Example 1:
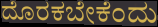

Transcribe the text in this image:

ದೊರಕಬೇಕೆಂದು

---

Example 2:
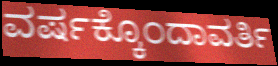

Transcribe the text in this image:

ವರ್ಷಕ್ಕೊಂದಾವರ್ತಿ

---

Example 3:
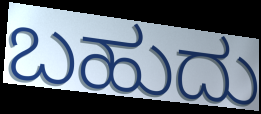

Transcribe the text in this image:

ಬಹುದು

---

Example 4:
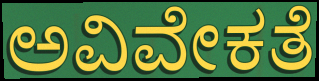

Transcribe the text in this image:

ಅವಿವೇಕತೆ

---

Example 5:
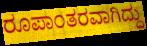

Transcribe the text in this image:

ರೂಪಾಂತರವಾಗಿದ್ದು